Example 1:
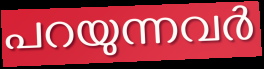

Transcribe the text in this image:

പറയുന്നവർ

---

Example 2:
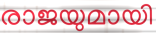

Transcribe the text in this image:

രാജയുമായി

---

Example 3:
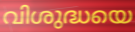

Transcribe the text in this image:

വിശുദ്ധയെ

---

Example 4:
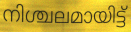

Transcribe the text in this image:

നിശ്ചലമായിട്ട്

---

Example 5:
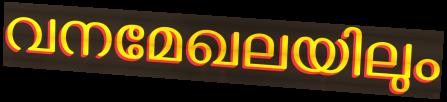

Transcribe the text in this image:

വനമേഖലയിലും